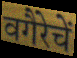
वगैरेचें